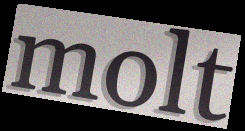
molt